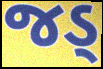
જડ્